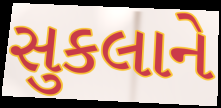
સુકલાને